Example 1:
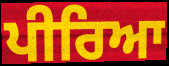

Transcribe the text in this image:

ਪੀਰਿਆ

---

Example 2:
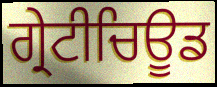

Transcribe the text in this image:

ਗ੍ਰੇਟੀਚਿਊਡ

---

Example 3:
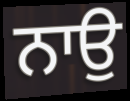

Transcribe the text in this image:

ਨਾਉ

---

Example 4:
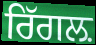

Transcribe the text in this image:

ਰਿੱਗਲ਼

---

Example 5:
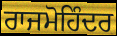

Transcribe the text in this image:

ਰਾਜਮੋਹਿੰਦਰ